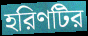
হরিণটির